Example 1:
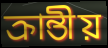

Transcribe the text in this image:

ক্রান্তীয়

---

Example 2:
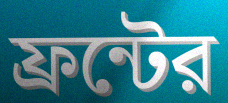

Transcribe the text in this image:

ফ্রন্টের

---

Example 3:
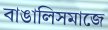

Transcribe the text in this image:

বাঙালিসমাজে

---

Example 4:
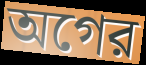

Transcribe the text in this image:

অগের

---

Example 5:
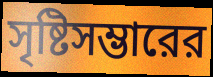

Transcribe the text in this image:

সৃষ্টিসম্ভারের